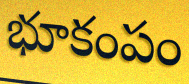
భూకంపం